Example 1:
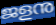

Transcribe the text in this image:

ജളനു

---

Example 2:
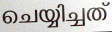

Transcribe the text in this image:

ചെയ്യിച്ചത്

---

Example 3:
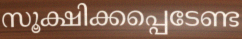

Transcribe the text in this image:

സൂക്ഷിക്കപ്പെടേണ്ട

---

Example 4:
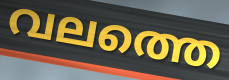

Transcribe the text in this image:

വലത്തെ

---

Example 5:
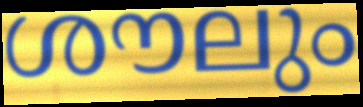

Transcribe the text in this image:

ശൗലും